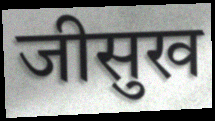
जीसुख